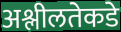
अश्लीलतेकडे